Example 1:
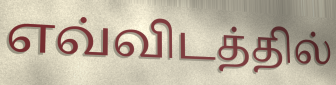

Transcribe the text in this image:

எவ்விடத்தில்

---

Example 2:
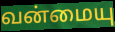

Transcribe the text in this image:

வன்மையு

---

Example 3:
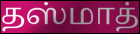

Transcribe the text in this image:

தஸ்மாத்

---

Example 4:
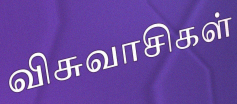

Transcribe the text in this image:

விசுவாசிகள்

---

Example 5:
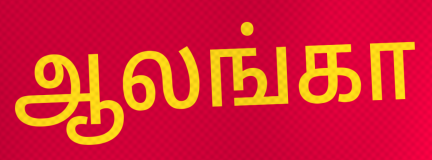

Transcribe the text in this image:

ஆலங்கா